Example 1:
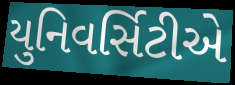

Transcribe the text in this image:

યુનિવર્સિટીએ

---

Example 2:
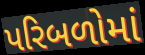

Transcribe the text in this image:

પરિબળોમાં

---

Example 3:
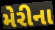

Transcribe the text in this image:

મેરીના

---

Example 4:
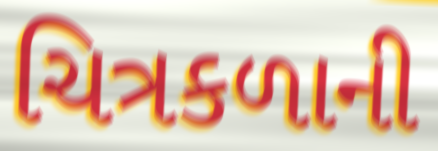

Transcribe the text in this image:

ચિત્રકળાની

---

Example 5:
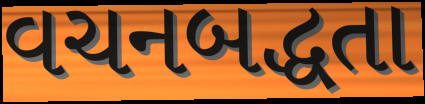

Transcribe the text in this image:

વચનબદ્ધતા